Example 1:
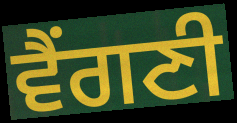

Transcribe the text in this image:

ਵੈਂਗਣੀ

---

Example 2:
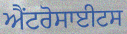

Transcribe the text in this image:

ਐਂਟਰੋਸਾਈਟਸ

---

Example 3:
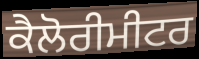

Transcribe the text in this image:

ਕੈਲੋਰੀਮੀਟਰ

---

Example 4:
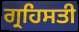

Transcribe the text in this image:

ਗ੍ਰਹਿਸਤੀ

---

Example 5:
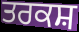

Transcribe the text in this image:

ਤਰਕਸ਼